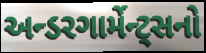
અન્ડરગાર્મેન્ટ્સનો